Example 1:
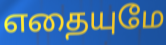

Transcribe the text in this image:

எதையுமே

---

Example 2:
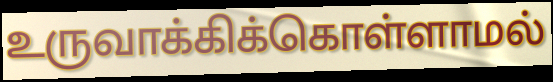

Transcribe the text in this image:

உருவாக்கிக்கொள்ளாமல்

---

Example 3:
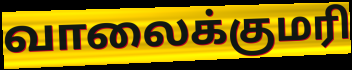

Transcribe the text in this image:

வாலைக்குமரி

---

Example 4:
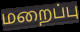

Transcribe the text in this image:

மறைப்பு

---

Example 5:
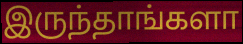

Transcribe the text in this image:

இருந்தாங்களா